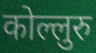
कोल्लुरु